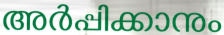
അർപ്പിക്കാനും